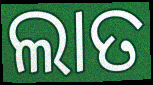
ଲାତ